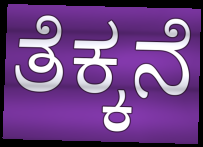
ತೆಕ್ಕನೆ